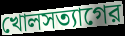
খোলসত্যাগের